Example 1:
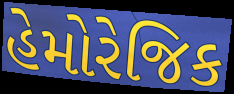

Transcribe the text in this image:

હેમોરેજિક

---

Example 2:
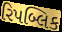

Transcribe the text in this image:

રિપબ્લિક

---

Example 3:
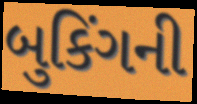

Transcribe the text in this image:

બુકિંગની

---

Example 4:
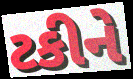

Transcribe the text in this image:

ટકીને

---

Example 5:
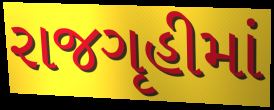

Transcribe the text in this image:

રાજગૃહીમાં